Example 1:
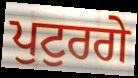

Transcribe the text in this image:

ਪੁਟੁਰਗੇ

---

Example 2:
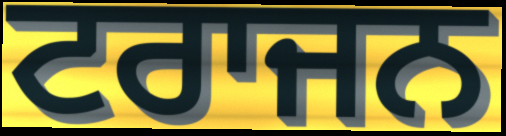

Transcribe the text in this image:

ਟਰਾਜਨ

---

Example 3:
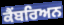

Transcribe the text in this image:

ਕੈਂਬਰਿਅਨ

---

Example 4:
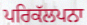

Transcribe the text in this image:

ਪਰਿਕੱਲਪਨਾ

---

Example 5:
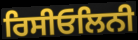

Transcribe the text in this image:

ਰਿਸੀਓਲਿਨੀ